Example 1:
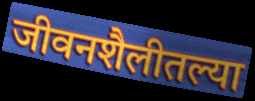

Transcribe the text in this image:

जीवनशैलीतल्या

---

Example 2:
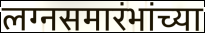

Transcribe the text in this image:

लग्नसमारंभांच्या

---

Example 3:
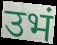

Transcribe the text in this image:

उभं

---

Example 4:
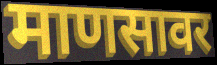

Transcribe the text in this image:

माणसावर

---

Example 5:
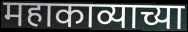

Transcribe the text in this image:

महाकाव्याच्या